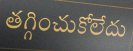
తగ్గించుకోలేదు